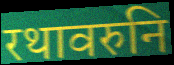
रथावरुनि